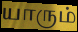
யாரும்